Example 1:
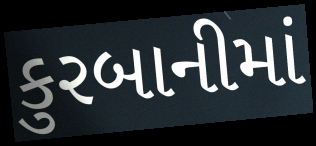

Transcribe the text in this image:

કુરબાનીમાં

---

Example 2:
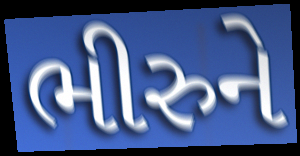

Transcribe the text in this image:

ભીરુને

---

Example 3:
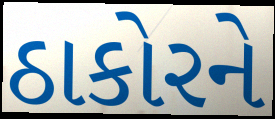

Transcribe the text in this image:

ઠાકોરને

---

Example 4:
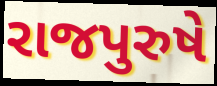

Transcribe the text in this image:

રાજપુરુષે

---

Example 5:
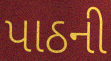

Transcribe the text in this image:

પાઠની